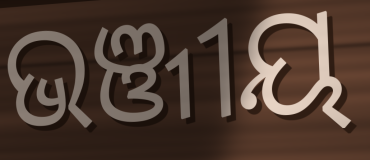
ଭଞ୍ଜୀୟ